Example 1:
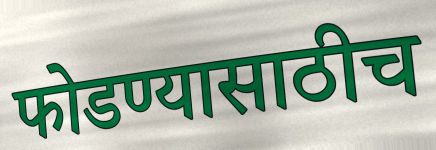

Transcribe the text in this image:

फोडण्यासाठीच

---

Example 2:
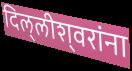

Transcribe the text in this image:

दिल्लीश्वरांना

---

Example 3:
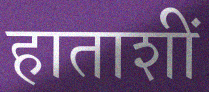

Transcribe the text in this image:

हाताशीं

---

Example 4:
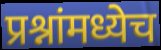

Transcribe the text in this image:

प्रश्नांमध्येच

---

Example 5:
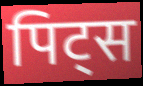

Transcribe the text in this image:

पिट्स